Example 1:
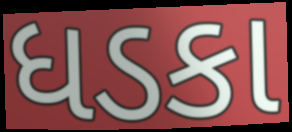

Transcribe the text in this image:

ધડકા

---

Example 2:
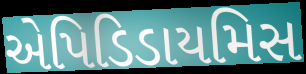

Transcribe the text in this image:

એપિડિડાયમિસ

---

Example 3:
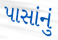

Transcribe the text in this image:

પાસાંનું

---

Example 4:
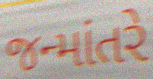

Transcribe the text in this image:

જન્માંતરે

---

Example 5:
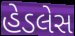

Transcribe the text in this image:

હેડલેસ